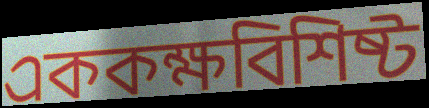
এককক্ষবিশিষ্ট